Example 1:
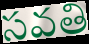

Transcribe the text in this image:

సవతి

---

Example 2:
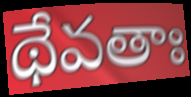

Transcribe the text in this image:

థేవతాః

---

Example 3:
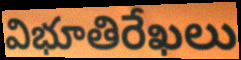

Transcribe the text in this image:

విభూతిరేఖలు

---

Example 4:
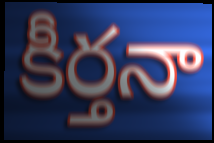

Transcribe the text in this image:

కీర్తనా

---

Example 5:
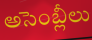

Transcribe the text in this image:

అసెంబ్లీలు